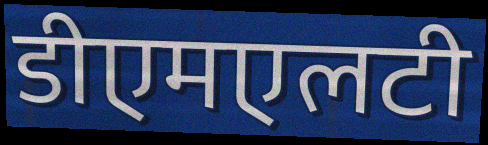
डीएमएलटी